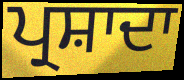
ਪ੍ਰਸ਼ਾਦਾ